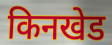
किनखेड